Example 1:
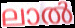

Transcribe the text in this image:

ലാൽ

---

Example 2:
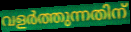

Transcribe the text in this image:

വളർത്തുന്നതിന്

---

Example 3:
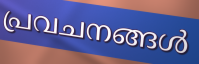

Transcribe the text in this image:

പ്രവചനങ്ങൾ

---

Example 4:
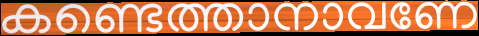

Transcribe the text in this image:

കണ്ടെത്താനാവണേ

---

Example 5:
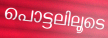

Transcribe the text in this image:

പൊട്ടലിലൂടെ